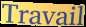
Travail